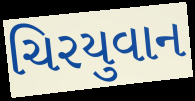
ચિરયુવાન